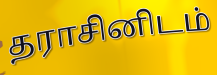
தராசினிடம்